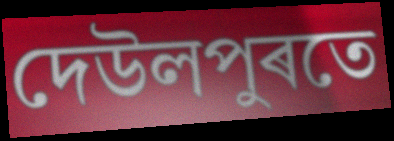
দেউলপুৰতে